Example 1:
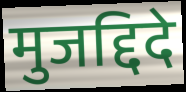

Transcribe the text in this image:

मुजद्दिदे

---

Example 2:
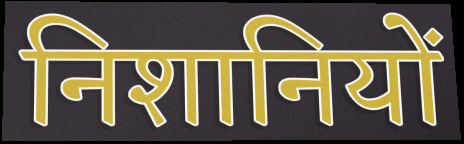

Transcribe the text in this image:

निशानियों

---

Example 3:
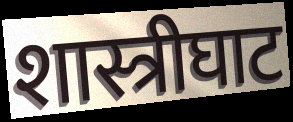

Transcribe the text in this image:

शास्त्रीघाट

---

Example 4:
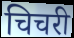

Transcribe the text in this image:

चिचरी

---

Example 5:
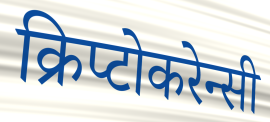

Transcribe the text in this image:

क्रिप्टोकरेन्सी